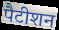
पैटीशन